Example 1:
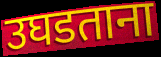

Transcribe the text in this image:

उघडताना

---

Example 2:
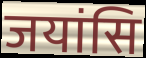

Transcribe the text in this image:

जयांसि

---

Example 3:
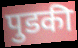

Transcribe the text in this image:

पुडकी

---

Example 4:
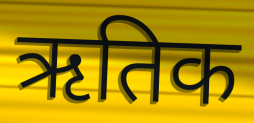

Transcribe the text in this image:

ऋतिक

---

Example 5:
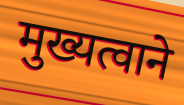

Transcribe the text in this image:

मुख्यत्वाने